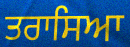
ਤਰਾਸਿਆ